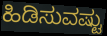
ಹಿಡಿಸುವಷ್ಟು